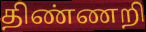
திண்ணறி